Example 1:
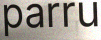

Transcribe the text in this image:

parru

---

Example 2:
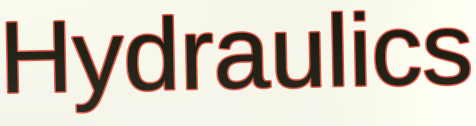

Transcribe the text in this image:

Hydraulics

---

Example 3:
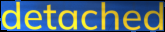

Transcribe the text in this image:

detached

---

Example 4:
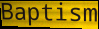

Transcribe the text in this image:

Baptism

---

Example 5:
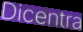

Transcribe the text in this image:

Dicentra